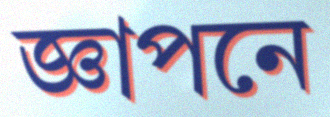
জ্ঞাপনে